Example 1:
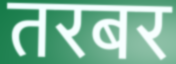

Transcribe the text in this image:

तरबर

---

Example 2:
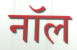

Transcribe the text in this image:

नॉल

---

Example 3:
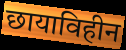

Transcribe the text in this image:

छायाविहीन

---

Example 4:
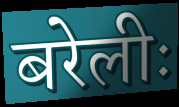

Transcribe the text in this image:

बरेलीः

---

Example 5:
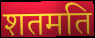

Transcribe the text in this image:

शतमति